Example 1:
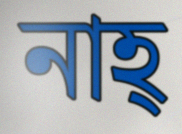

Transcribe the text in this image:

নাহ্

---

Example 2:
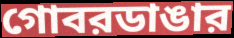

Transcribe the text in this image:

গোবরডাঙার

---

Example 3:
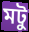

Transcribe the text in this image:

মটু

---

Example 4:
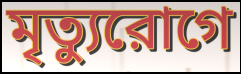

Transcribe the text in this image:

মৃত্যুরোগে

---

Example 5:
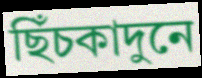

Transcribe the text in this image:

ছিঁচকাদুনে